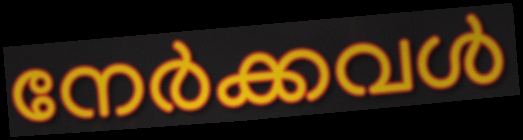
നേർക്കവൾ